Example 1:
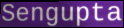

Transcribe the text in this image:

Sengupta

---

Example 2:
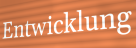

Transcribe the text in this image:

Entwicklung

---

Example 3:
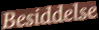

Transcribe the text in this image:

Besiddelse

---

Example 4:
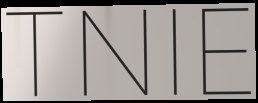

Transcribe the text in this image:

TNIE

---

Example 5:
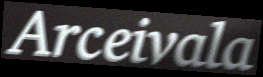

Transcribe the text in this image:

Arceivala